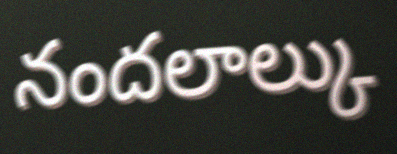
నందలాల్కు